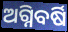
ଅଗ୍ନିବର୍ଷି